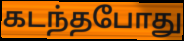
கடந்தபோது